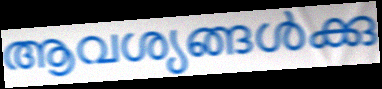
ആവശ്യങ്ങൾക്കു